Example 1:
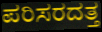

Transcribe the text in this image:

ಪರಿಸರದತ್ತ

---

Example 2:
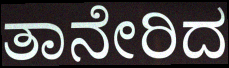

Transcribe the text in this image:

ತಾನೇರಿದ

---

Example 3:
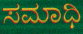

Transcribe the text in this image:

ಸಮಾಧಿ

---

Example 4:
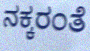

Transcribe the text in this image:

ನಕ್ಕರಂತೆ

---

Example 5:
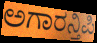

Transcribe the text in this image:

ಅಗಾರನ್ತಿಪಿ